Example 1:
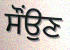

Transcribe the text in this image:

ਸੌਂਉਣ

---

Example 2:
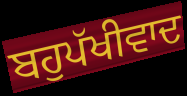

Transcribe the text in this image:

ਬਹੁਪੱਖੀਵਾਦ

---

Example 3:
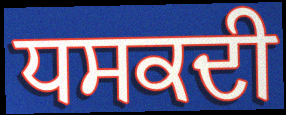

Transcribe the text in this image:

ਧਸਕਦੀ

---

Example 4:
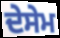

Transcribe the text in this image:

ਦੇਸੇਮ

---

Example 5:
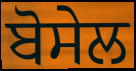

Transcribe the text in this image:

ਬੋਸੇਲ